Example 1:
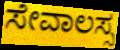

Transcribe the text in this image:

ಸೇವಾಲಸ್ಸ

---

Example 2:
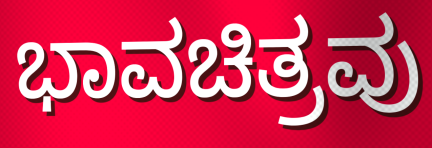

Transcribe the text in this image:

ಭಾವಚಿತ್ರವು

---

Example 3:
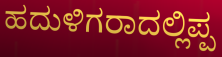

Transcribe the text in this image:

ಹದುಳಿಗರಾದಲ್ಲಿಪ್ಪ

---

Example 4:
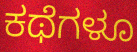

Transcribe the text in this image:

ಕಥೆಗಳೂ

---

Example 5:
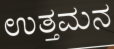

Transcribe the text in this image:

ಉತ್ತಮನ